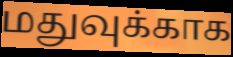
மதுவுக்காக